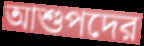
আশুপদের